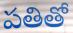
పతితో